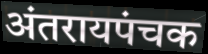
अंतरायपंचक